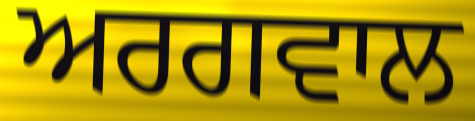
ਅਰਗਵਾਲ